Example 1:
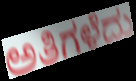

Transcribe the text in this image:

ಅತಿಗಳೆದು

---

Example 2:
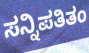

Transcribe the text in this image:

ಸನ್ನಿಪತಿತಂ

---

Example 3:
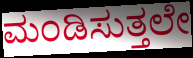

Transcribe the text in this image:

ಮಂಡಿಸುತ್ತಲೇ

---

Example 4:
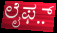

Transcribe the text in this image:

ಲೈಫ಼್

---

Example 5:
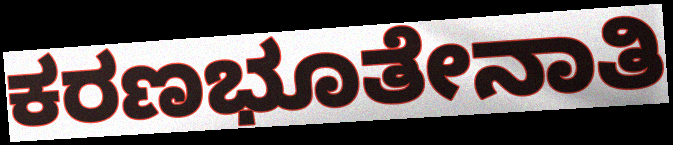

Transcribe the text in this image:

ಕರಣಭೂತೇನಾತಿ